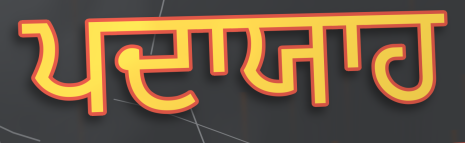
ਪਦਾਯਾਹ